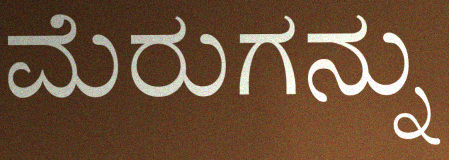
ಮೆರುಗನ್ನು